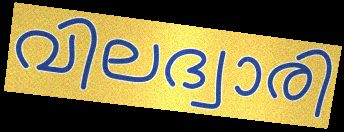
വിലദ്വാരി